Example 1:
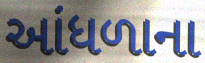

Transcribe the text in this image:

આંધળાના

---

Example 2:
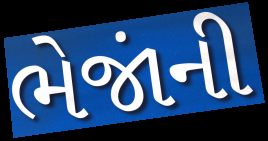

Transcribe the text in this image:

ભેજાંની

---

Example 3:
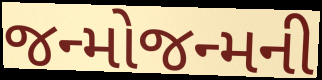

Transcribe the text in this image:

જન્મોજન્મની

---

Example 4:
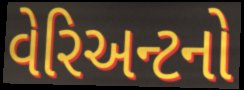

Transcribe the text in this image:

વેરિઅન્ટનો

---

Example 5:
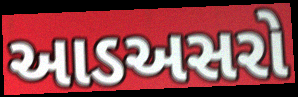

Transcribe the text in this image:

આડઅસરો